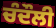
ਚੰਦੌਲੀ